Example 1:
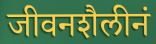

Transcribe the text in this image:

जीवनशैलीनं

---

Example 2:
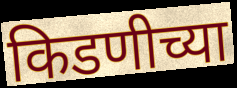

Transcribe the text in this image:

किडणीच्या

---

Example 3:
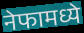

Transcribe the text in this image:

नेफामध्ये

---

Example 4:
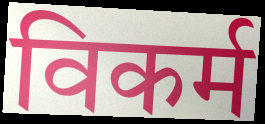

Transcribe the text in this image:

विकर्म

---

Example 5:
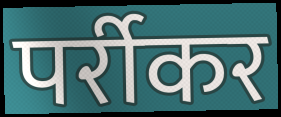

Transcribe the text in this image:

पर्रीकर